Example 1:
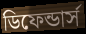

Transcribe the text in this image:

ডিফেন্ডার্স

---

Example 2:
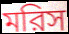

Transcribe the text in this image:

মরিস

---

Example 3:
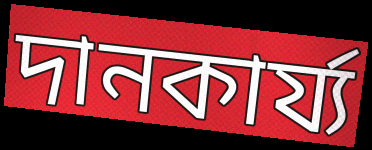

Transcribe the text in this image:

দানকার্য্য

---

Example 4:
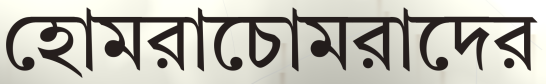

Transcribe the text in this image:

হোমরাচোমরাদের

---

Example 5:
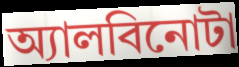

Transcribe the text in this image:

অ্যালবিনোটা